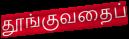
தூங்குவதைப்